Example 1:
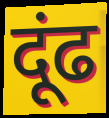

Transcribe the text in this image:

दूंढ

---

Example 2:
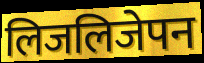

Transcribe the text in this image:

लिजलिजेपन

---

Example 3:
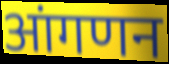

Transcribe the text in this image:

आंगणन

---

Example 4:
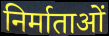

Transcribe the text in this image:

निर्माताओं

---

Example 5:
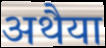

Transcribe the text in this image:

अथैया